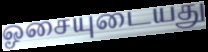
ஓசையுடையது